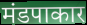
मंडपाकार